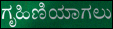
ಗೃಹಿಣಿಯಾಗಲು